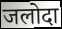
जलोदा